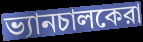
ভ্যানচালকেরা